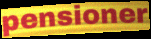
pensioner